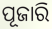
ପୂଜାରି